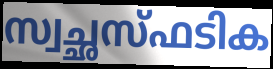
സ്വച്ഛസ്ഫടിക